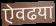
ऐवढया